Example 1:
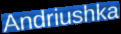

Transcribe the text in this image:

Andriushka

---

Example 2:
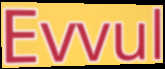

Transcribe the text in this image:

Evvul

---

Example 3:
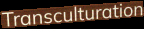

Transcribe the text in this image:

Transculturation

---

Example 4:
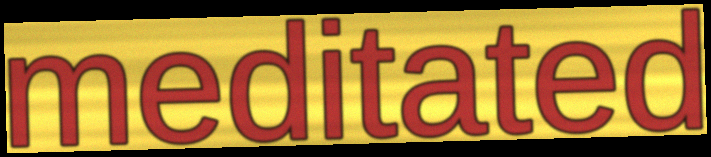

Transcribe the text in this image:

meditated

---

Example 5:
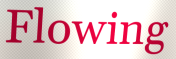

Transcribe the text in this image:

Flowing